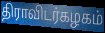
திராவிடர்கழகம்